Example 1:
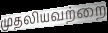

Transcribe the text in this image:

முதலியவற்றை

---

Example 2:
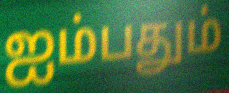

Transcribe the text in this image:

ஐம்பதும்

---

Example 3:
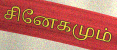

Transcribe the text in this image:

சினேகமும்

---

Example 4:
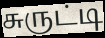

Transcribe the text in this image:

சுருட்டி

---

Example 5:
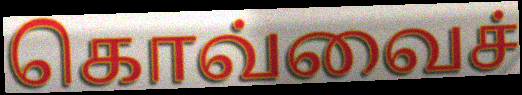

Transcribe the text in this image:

கொவ்வைச்